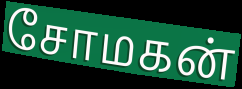
சோமகன்